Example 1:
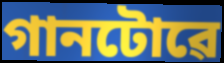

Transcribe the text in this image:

গানটোৱে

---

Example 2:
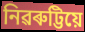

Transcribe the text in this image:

নিৱৰুট্টিয়ে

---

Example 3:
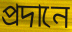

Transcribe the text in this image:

প্ৰদানে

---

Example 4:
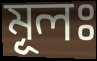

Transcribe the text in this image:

মূলঃ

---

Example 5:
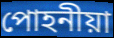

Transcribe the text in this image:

পোহনীয়া